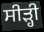
ਸੀੜ੍ਹੀ